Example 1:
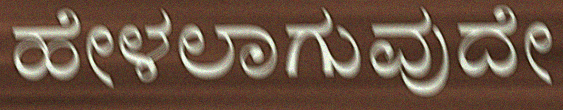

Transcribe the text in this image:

ಹೇಳಲಾಗುವುದೇ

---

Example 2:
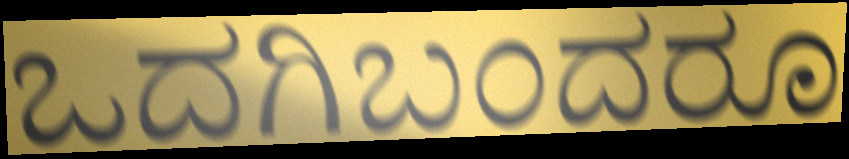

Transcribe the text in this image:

ಒದಗಿಬಂದರೂ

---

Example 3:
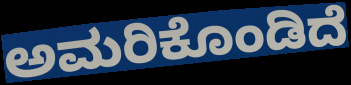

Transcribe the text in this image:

ಅಮರಿಕೊಂಡಿದೆ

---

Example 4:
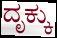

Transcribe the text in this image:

ದೃಕ್ಕು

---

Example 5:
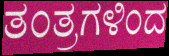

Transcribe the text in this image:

ತಂತ್ರಗಳಿಂದ